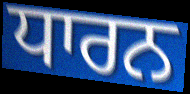
ਧਾਰਨ